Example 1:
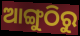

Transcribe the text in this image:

ଆଙ୍ଗୁଠିରୁ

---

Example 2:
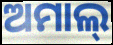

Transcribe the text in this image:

ଅମାଲ୍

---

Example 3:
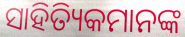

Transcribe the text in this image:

ସାହିତ୍ୟିକମାନଙ୍କ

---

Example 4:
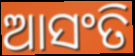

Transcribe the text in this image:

ଆସଂତି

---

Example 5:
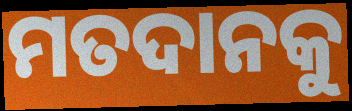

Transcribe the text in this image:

ମତଦାନକୁ